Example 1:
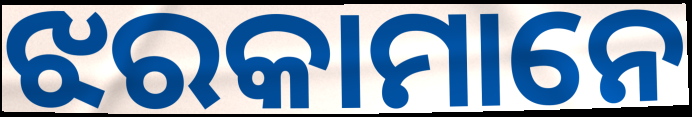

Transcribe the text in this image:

ଝରକାମାନେ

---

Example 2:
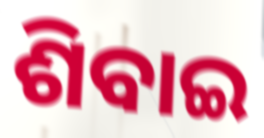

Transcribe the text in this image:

ଶିବାଇ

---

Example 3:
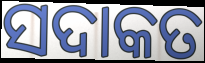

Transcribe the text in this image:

ସଦାକତ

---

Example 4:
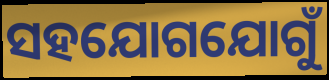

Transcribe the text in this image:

ସହଯୋଗଯୋଗୁଁ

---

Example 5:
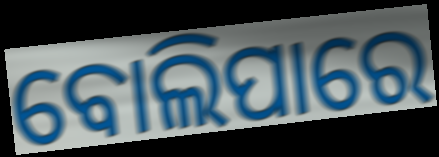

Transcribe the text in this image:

ବୋଲିପାରେ